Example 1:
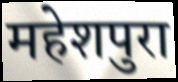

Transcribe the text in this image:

महेशपुरा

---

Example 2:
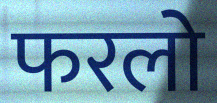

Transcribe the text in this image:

फरलो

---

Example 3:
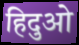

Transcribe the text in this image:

हिदुओ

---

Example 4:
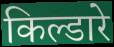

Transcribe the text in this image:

किल्डारे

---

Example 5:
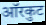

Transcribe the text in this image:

ऑरकुट